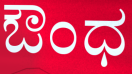
ಔಂಧ